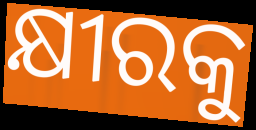
କ୍ଷୀରକୁ